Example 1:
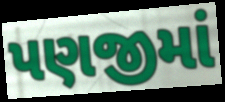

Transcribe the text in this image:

પણજીમાં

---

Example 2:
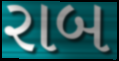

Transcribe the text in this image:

રાબ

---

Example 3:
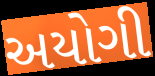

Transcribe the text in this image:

અયોગી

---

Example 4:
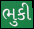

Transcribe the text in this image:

ભુકી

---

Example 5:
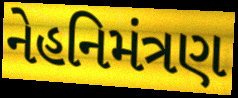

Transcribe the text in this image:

નેહનિમંત્રણ